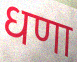
धणा